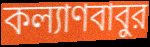
কল্যাণবাবুর